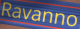
Ravanno